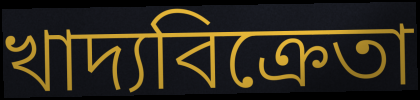
খাদ্যবিক্রেতা